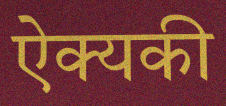
ऐक्यकी